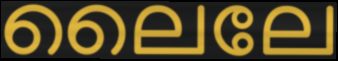
ലൈലേ